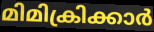
മിമിക്രിക്കാർ